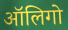
ऑलिगो